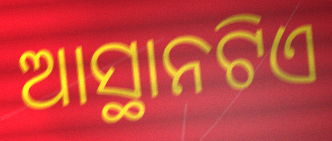
ଆସ୍ଥାନଟିଏ